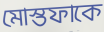
মোস্তফাকে